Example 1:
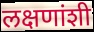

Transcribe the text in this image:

लक्षणांशी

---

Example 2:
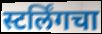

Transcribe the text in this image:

स्टर्लिंगचा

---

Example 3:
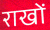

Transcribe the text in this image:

राखों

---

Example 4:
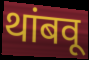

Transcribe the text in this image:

थांबवू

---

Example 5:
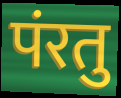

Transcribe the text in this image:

पंरतु